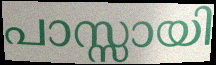
പാസ്സായി